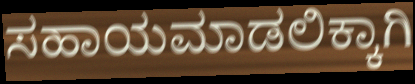
ಸಹಾಯಮಾಡಲಿಕ್ಕಾಗಿ